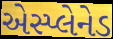
એસ્પ્લેનેડ